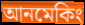
আনমেকিং